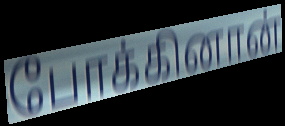
போக்கினான்